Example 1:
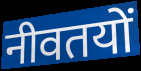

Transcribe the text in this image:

नीवतयों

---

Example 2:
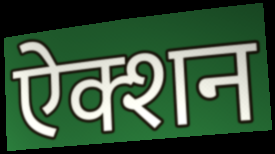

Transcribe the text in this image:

ऐक्‍शन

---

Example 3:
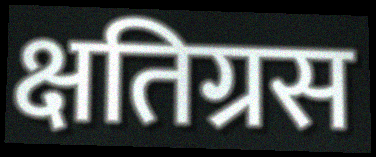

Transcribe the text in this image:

क्षतिग्रस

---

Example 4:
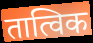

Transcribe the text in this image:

तात्विक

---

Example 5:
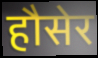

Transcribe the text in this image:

हौसेर